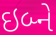
ઇબ્ને